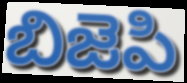
బిజెపి